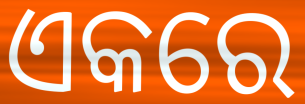
ଏକରେ